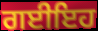
ਗਈਇਹ